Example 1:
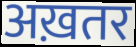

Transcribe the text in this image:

अख़तर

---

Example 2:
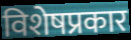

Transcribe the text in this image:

विशेषप्रकार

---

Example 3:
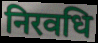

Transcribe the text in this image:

निरवधि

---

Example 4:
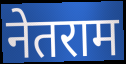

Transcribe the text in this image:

नेतराम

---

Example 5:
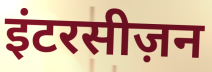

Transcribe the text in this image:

इंटरसीज़न